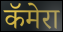
कॅमेरा